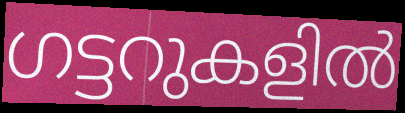
ഗട്ടറുകളിൽ